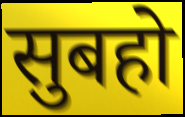
सुबहो